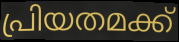
പ്രിയതമക്ക്